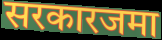
सरकारजमा